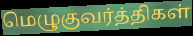
மெழுகுவர்த்திகள்